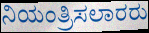
ನಿಯಂತ್ರಿಸಲಾರರು